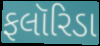
ફલૉરિડા